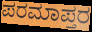
ಪರಮಾಪ್ತರ